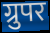
ग्रुपर